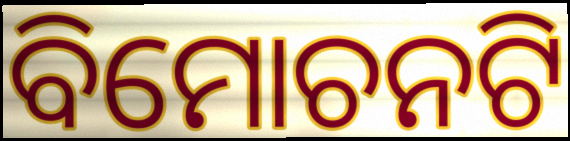
ବିମୋଚନଟି